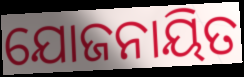
ଯୋଜନାୟିତ